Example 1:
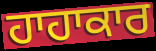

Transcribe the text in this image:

ਹਾਹਾਕਾਰ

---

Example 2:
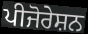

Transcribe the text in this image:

ਪੀਜੋਰੇਸ਼ਨ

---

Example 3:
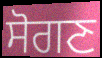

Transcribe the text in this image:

ਸੋਗਣ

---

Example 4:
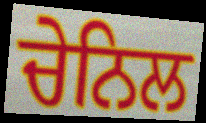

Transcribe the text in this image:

ਚੇਨਿਲ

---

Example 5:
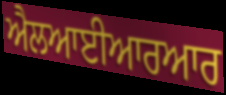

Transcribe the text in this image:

ਐਲਆਈਆਰਆਰ